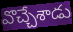
వొచ్చేశాడు